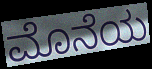
ಮೊನೆಯ